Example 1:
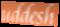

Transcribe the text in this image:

uddesh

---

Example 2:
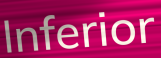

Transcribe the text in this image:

Inferior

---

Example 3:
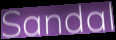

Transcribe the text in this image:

Sandal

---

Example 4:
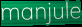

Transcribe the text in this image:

manjule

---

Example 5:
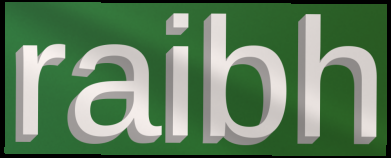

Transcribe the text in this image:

raibh